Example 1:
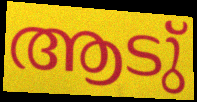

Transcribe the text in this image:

ആടു്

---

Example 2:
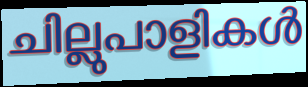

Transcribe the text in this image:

ചില്ലുപാളികൾ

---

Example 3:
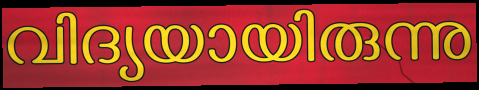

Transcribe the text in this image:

വിദ്യയായിരുന്നു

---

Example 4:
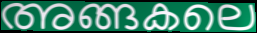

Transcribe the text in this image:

അങ്ങകലെ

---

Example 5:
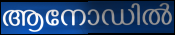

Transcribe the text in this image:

ആനോഡിൽ